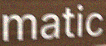
matic